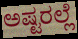
ಅಷ್ಟರಲ್ಲೆ